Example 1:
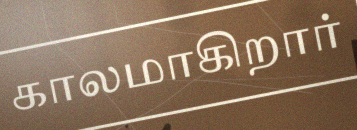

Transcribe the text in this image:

காலமாகிறார்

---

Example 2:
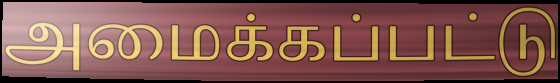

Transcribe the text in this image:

அமைக்கப்பட்டு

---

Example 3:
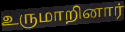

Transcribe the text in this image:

உருமாறினார்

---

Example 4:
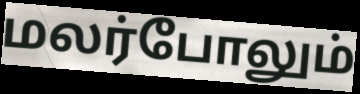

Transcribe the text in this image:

மலர்போலும்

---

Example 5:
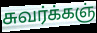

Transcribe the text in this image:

சுவர்க்கஞ்